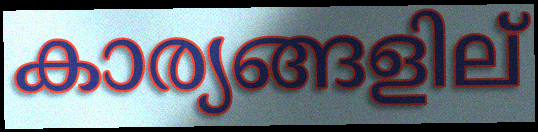
കാര്യങ്ങളില്